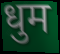
धुम